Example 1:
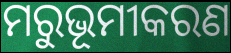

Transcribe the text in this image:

ମରୁଭୂମୀକରଣ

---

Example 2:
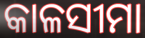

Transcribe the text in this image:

କାଳସୀମା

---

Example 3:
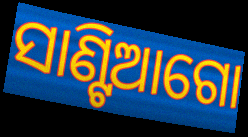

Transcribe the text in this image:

ସାଣ୍ଟିଆଗୋ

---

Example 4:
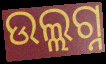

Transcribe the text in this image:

ଉଲ୍ଲଗ୍ନ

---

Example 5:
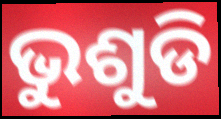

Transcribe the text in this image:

ଭୁଶୁଡି